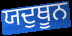
ਯਦੁਥੂਨ